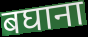
बघाना